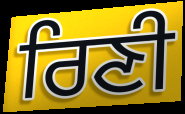
ਰਿਣੀ